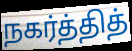
நகர்த்தித்